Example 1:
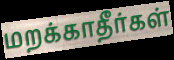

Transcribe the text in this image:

மறக்காதீர்கள்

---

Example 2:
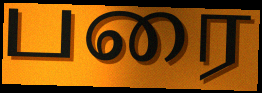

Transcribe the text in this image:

பரை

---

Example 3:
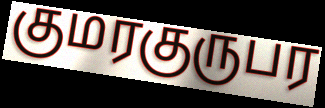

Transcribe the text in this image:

குமரகுருபர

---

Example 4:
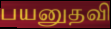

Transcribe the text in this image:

பயனுதவி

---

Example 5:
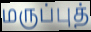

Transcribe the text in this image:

மருப்புத்